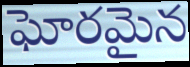
ఘోరమైన